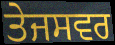
ਤੇਜਸਵਰ